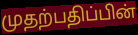
முதற்பதிப்பின்